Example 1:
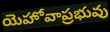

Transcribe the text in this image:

యెహోవాప్రభువు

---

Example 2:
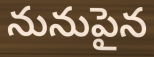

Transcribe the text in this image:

నునుపైన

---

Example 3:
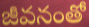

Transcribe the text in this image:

జీవనంతో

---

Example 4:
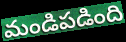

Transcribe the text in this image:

మండిపడింది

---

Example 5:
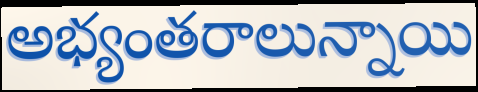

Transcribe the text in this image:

అభ్యంతరాలున్నాయి